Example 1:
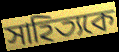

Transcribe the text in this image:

সাহিত্যকে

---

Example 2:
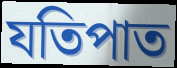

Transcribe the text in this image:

যতিপাত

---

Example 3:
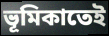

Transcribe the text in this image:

ভূমিকাতেই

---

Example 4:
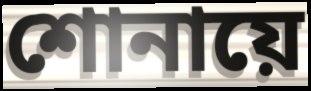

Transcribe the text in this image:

শোনায়ে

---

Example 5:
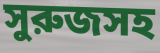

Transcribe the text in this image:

সুরুজসহ